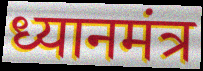
ध्यानमंत्र